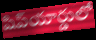
షిప్‌యార్డులో